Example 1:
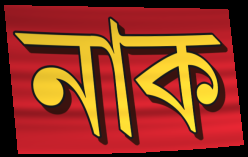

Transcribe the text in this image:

নাক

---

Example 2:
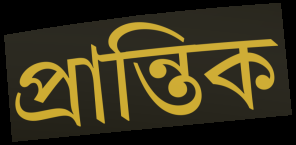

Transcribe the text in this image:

প্রান্তিক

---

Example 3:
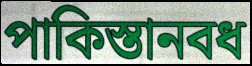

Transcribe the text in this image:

পাকিস্তানবধ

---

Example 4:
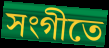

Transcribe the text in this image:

সংগীতে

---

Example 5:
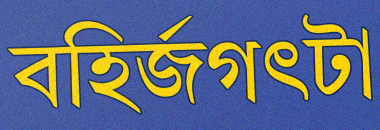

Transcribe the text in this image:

বহির্জগৎটা